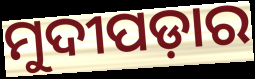
ମୁଦୀପଡ଼ାର